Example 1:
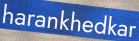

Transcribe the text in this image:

harankhedkar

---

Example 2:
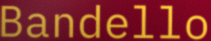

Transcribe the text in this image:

Bandello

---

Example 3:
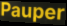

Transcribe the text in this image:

Pauper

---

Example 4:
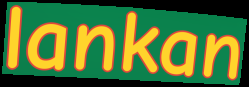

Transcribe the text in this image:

lankan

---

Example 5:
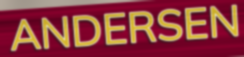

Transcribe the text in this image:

ANDERSEN